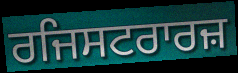
ਰਜਿਸਟਰਾਰਜ਼